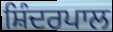
ਸ਼ਿੰਦਰਪਾਲ